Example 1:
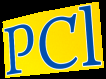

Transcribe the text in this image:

PCl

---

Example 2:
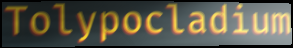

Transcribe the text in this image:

Tolypocladium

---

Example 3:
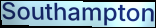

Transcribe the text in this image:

Southampton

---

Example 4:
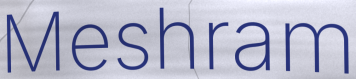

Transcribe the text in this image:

Meshram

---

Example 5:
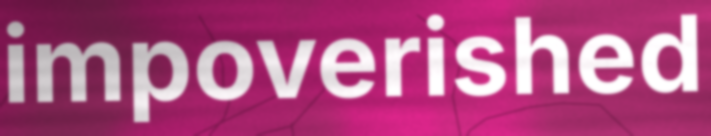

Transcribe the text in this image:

impoverished